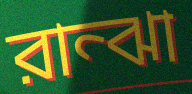
রান্ঝা